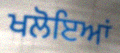
ਖਲੋਇਆਂ